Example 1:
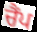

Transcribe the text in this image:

ਚੈਂਪ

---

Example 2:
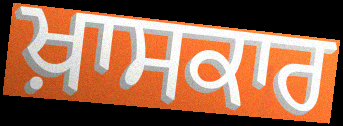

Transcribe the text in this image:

ਖ਼ਾਸਕਾਰ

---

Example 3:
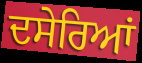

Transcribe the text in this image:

ਦਸੇਰਿਆਂ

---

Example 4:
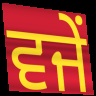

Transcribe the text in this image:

ਵਜੇਂ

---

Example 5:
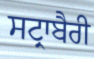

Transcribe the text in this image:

ਸਟ੍ਰਾਬੈਰੀ